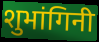
शुभांगिनी